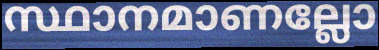
സ്ഥാനമാണല്ലോ